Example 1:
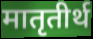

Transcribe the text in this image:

मातृतीर्थ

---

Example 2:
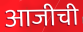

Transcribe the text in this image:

आजीची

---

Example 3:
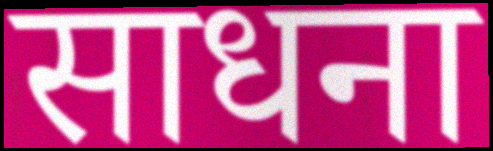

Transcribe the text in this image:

साधना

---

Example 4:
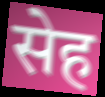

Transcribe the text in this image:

सेह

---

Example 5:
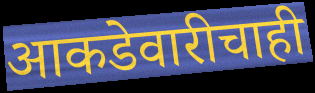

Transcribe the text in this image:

आकडेवारीचाही